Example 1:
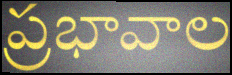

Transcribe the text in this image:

ప్రభావాల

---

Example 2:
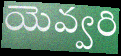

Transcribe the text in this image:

యెవ్వరి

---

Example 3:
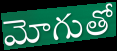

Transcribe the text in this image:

మోగుతో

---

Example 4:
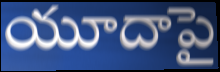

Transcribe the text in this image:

యూదాపై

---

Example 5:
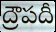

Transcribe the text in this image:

ద్రౌపదీ